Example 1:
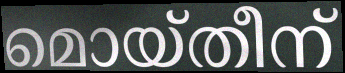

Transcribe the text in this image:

മൊയ്തീന്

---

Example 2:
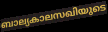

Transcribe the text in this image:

ബാല്യകാലസഖിയുടെ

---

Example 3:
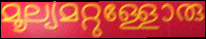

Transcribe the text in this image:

മൂല്യമറ്റുള്ളോരു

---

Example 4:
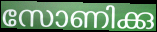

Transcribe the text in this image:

സോണിക്കു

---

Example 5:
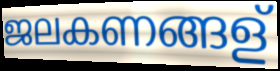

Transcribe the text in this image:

ജലകണങ്ങള്